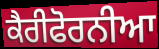
ਕੈਰੀਫੋਰਨੀਆ